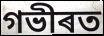
গভীৰত